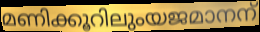
മണിക്കൂറിലുംയജമാനന്